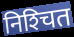
निश्‍चित